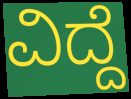
ವಿದ್ದೆ